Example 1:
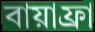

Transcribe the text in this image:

বায়াফ্রা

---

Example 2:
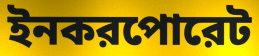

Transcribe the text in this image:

ইনকরপোরেট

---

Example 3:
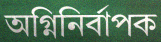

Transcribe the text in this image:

অগ্নিনির্বাপক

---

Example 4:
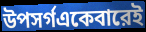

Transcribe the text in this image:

উপসর্গএকেবারেই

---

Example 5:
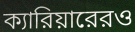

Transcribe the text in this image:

ক্যারিয়ারেরও